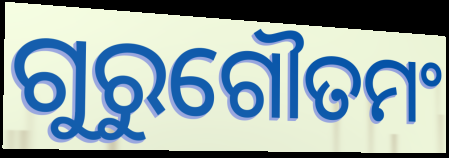
ଗୁରୁଗୌତମଂ